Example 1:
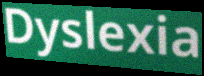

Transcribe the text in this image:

Dyslexia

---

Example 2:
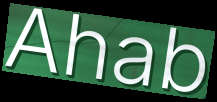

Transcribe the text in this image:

Ahab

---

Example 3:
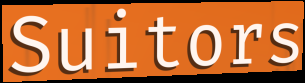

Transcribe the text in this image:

Suitors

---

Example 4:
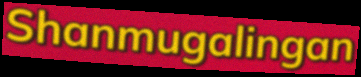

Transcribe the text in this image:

Shanmugalingan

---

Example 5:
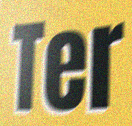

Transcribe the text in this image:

Ter